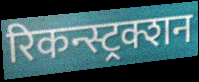
रिकन्स्ट्रक्शन